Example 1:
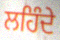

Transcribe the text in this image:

ਲਹਿੰਦੇ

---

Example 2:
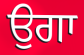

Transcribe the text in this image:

ਉਗਾ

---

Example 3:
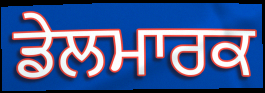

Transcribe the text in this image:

ਡੇਲਮਾਰਕ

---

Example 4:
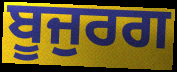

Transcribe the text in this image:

ਬੂਜੁਰਗ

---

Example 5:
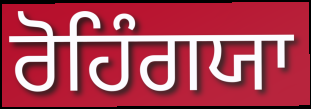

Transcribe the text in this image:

ਰੋਹਿੰਗਯਾ